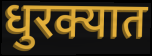
धुरक्यात